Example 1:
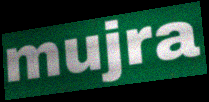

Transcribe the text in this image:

mujra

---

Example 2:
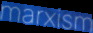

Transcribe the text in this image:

marxism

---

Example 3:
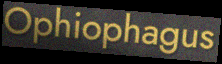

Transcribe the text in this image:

Ophiophagus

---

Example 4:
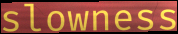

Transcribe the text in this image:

slowness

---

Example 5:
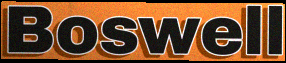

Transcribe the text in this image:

Boswell